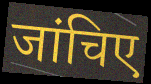
जांचिए